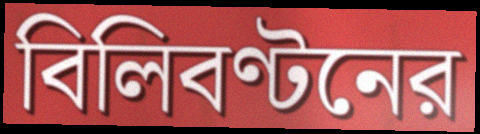
বিলিবণ্টনের